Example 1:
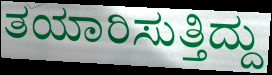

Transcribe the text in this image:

ತಯಾರಿಸುತ್ತಿದ್ದು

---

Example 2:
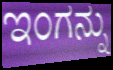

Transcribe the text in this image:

ಇಂಗನ್ನು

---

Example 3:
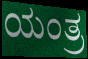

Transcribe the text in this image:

ಯಂತ್ರ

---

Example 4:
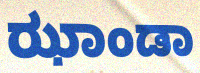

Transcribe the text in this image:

ಝಾಂಡಾ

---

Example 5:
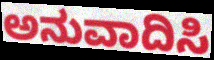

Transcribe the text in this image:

ಅನುವಾದಿಸಿ